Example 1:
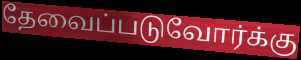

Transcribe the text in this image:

தேவைப்படுவோர்க்கு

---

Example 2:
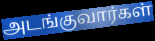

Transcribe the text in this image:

அடங்குவார்கள்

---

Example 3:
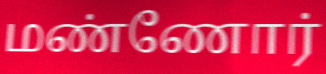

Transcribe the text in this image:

மண்ணோர்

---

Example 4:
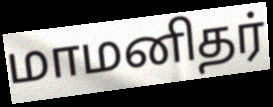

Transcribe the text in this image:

மாமனிதர்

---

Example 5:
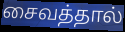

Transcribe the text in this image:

சைவத்தால்